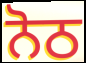
ਨੋਠ